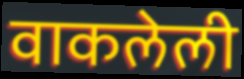
वाकलेली